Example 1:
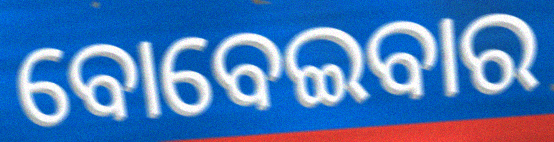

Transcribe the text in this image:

ବୋବେଇବାର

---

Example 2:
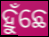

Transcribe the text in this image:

ହୁଁଛେ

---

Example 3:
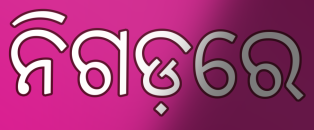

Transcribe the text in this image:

ନିଗଡ଼ରେ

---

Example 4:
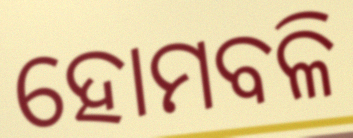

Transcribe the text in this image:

ହୋମବଳି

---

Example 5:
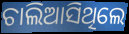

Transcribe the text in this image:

ଚାଲିଆସିଥିଲେ